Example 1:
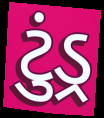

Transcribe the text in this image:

ટુંડ્ર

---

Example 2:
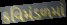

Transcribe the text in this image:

કવિમંડળમાં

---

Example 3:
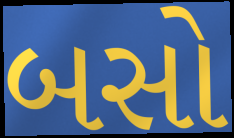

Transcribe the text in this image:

બસો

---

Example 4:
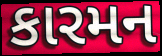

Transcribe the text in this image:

કારમન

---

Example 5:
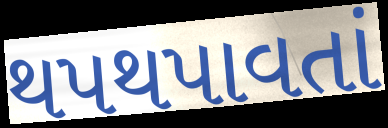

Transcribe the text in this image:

થપથપાવતાં